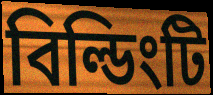
বিল্ডিংটি